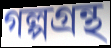
গল্পগ্রন্থ